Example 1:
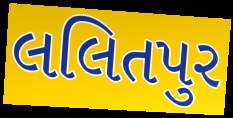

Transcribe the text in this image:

લલિતપુર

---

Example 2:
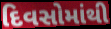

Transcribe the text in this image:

દિવસોમાંથી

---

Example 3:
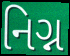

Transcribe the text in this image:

નિગ્ન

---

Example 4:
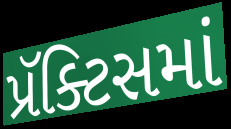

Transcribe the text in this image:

પ્રૅક્ટિસમાં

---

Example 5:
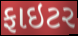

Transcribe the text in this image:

ફાઇટર